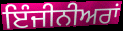
ਇੰਜੀਨੀਅਰਾਂ